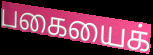
பகையைக்